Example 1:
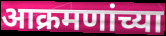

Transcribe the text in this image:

आक्रमणांच्या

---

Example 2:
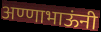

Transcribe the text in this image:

अण्णाभाऊंनी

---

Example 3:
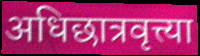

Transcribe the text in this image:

अधिछात्रवृत्त्या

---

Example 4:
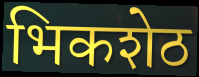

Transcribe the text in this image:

भिकशेठ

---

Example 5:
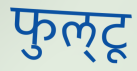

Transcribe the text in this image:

फुल्टू